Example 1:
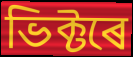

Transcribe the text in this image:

ভিক্টৰে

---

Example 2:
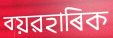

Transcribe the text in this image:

ব্য়ৱহাৰিক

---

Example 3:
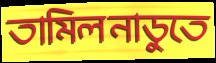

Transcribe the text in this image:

তামিলনাডুতে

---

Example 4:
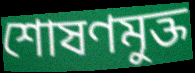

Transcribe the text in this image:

শোষণমুক্ত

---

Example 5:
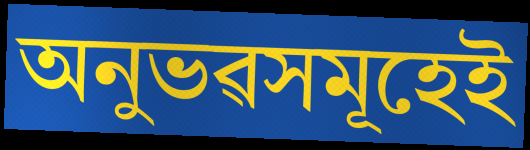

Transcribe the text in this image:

অনুভৱসমূহেই